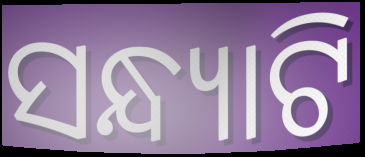
ସନ୍ଧ୍ୟାଟି